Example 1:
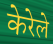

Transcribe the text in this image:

केरेले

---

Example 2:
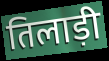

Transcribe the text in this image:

तिलाड़ी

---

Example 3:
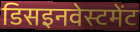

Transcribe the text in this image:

डिसइनवेस्टमेंट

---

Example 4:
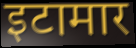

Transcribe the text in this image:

इटामार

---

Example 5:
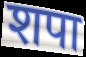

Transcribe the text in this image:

शपा